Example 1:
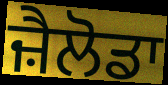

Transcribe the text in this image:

ਜ਼ੈਲੋਡਾ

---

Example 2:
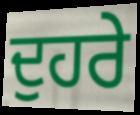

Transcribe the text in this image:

ਦੁਹਰੇ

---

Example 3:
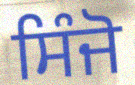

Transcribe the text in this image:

ਸਿੰਜੋ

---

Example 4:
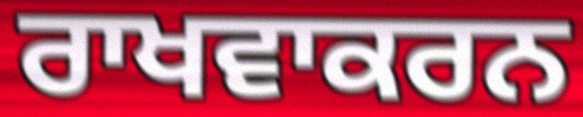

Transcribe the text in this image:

ਰਾਖਵਾਕਰਨ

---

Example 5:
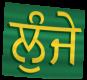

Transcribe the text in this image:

ਲੁੰਜੇ